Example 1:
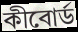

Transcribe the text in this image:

কীবোর্ড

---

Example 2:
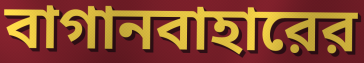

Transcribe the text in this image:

বাগানবাহারের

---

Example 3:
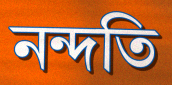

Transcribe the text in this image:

নন্দতি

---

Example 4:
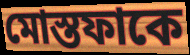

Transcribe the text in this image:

মোস্তফাকে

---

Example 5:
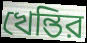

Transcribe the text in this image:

খেন্তির